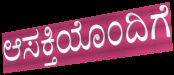
ಆಸಕ್ತಿಯೊಂದಿಗೆ